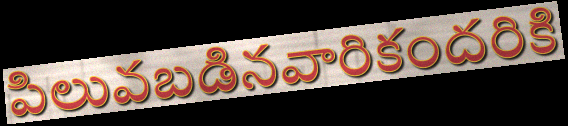
పిలువబడినవారికందరికి